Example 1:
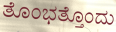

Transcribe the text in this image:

ತೊಂಭತ್ತೊಂದು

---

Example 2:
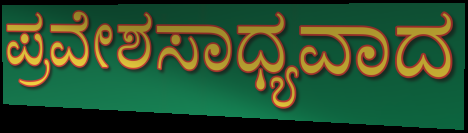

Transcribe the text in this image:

ಪ್ರವೇಶಸಾಧ್ಯವಾದ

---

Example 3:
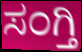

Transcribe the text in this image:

ಸಂಗ್ತಿ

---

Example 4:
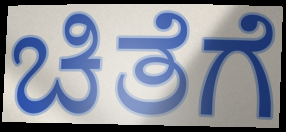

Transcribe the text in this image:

ಚಿತೆಗೆ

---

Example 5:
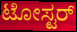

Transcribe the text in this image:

ಟೋಸ್ಟರ್